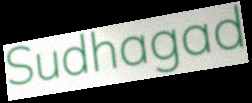
Sudhagad